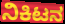
ನಿಕಿಟನ